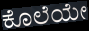
ಕೊಲೆಯೇ